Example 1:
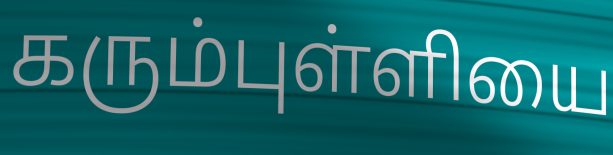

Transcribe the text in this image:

கரும்புள்ளியை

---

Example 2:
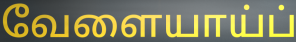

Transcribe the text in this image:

வேளையாய்ப்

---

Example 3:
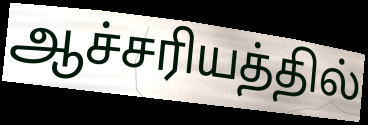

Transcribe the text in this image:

ஆச்சரியத்தில்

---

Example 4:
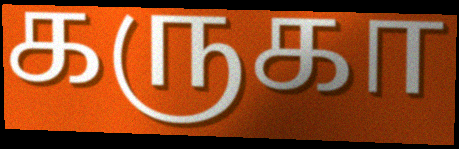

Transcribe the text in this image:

கருகா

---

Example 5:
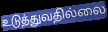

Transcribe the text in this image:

உடுத்துவதில்லை